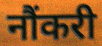
नौंकरी